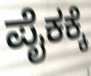
ಪೈಕಕ್ಕೆ